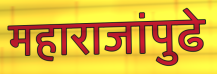
महाराजांपुढे